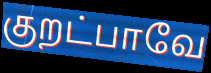
குறட்பாவே